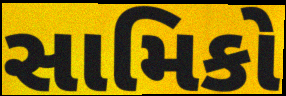
સામિકો